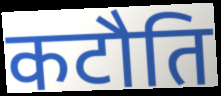
कटौति